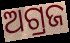
ଅଗ୍ରଜ